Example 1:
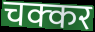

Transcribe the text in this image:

चक्‍कर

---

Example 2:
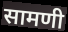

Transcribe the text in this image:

सामणी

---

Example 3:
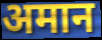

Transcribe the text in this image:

अमान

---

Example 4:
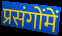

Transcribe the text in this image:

प्रसंगोंमें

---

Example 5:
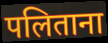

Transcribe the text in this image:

पलिताना